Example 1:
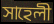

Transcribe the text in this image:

সাহেলী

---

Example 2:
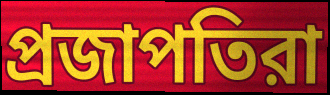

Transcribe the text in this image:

প্রজাপতিরা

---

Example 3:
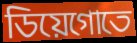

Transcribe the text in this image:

ডিয়েগোতে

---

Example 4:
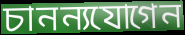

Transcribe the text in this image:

চানন্যযোগেন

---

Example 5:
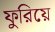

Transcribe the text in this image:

ফুরিয়ে